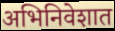
अभिनिवेशात